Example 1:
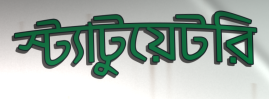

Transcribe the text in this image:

স্ট্যাটুয়েটরি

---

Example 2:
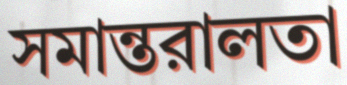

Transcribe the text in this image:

সমান্তরালতা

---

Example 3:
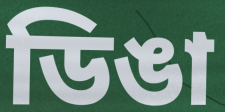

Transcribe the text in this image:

ডিঙা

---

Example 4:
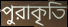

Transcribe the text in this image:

পুরাকৃতি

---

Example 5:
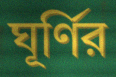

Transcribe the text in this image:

ঘূর্ণির